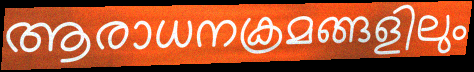
ആരാധനക്രമങ്ങളിലും